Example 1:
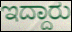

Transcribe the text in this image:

ಇದ್ದಾರು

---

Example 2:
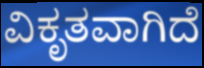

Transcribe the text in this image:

ವಿಕೃತವಾಗಿದೆ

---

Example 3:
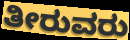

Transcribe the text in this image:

ತೀರುವರು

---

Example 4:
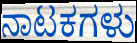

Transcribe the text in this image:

ನಾಟಕಗಳು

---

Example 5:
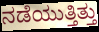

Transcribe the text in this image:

ನಡೆಯುತ್ತಿತ್ತು